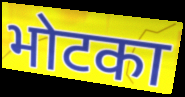
भोटका